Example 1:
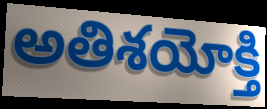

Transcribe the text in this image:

అతిశయోక్తి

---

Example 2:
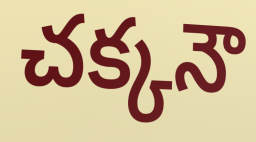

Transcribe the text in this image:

చక్కనౌ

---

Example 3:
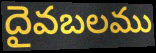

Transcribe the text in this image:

దైవబలము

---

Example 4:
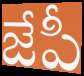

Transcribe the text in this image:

జేపీ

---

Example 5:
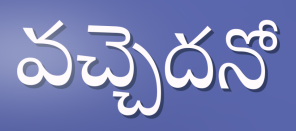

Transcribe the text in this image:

వచ్చెదనో